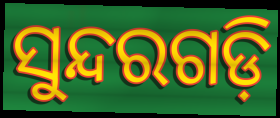
ସୁନ୍ଦରଗଡ଼ି